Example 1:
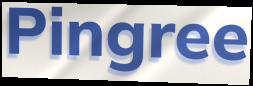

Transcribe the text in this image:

Pingree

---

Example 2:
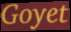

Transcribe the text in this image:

Goyet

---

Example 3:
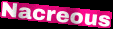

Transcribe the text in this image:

Nacreous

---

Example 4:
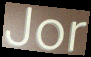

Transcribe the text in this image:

Jor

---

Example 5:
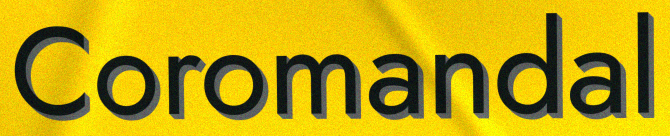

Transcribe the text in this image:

Coromandal